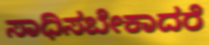
ಸಾಧಿಸಬೇಕಾದರೆ